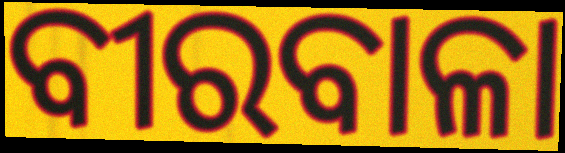
ବୀରବାଳା